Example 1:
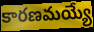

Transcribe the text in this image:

కారణమయ్యే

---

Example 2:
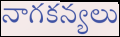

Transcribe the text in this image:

నాగకన్యలు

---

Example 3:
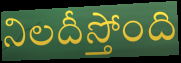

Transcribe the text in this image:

నిలదీస్తోంది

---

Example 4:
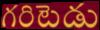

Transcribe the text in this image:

గరిటెడు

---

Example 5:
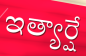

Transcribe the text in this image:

ఇత్యార్షే